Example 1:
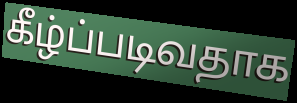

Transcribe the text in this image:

கீழ்ப்படிவதாக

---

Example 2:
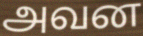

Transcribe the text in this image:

அவன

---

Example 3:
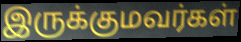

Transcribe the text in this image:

இருக்குமவர்கள்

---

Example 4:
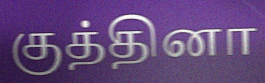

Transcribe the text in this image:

குத்தினா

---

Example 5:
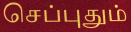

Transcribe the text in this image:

செப்புதும்